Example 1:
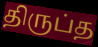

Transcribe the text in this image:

திருப்த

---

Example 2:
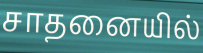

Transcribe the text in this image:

சாதனையில்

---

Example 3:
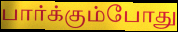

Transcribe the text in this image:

பார்க்கும்போது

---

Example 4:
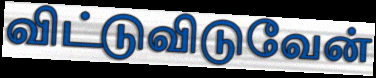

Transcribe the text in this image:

விட்டுவிடுவேன்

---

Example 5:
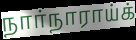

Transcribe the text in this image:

நார்நாராய்க்